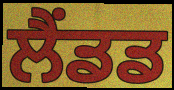
ਲੈਂਡਡ